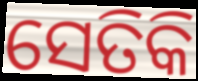
ସେତିକି